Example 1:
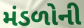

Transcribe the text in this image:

મંડળોની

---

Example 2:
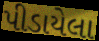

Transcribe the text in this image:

પીડાયેલા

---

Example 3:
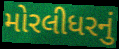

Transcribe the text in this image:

મોરલીધરનું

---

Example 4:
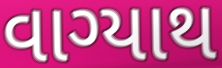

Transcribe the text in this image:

વાગ્યાથ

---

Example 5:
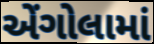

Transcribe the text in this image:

એંગોલામાં